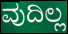
ವುದಿಲ್ಲ